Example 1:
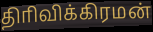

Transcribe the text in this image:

திரிவிக்கிரமன்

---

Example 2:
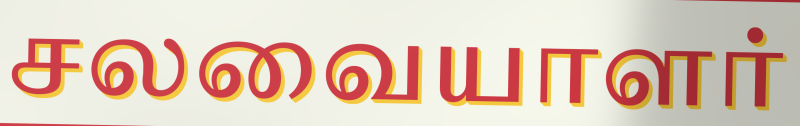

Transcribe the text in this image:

சலவையாளர்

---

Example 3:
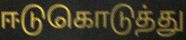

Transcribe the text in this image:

ஈடுகொடுத்து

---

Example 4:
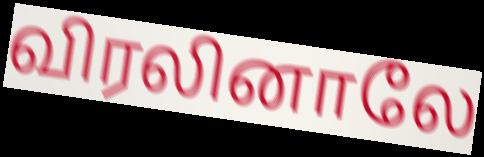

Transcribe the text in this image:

விரலினாலே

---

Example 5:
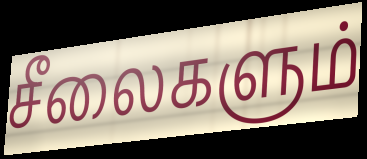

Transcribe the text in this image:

சீலைகளும்